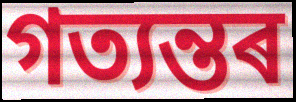
গত্যন্তৰ